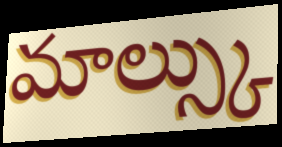
మాల్స్కు